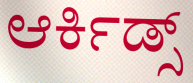
ಆರ್ಕಿಡ್ಸ್